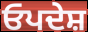
ਓਪਦੇਸ਼